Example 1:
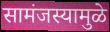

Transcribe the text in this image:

सामंजस्यामुळे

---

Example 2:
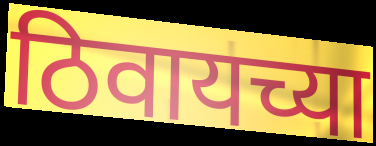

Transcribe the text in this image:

ठिवायच्या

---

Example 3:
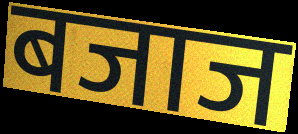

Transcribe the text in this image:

बजाज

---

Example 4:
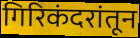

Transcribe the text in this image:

गिरिकंदरांतून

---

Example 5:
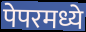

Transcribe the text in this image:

पेपरमध्ये